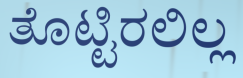
ತೊಟ್ಟಿರಲಿಲ್ಲ